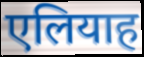
एलियाह